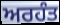
ਅਰਹੰਤ